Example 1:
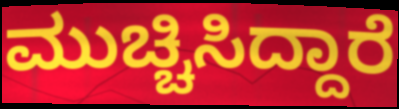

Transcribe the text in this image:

ಮುಚ್ಚಿಸಿದ್ದಾರೆ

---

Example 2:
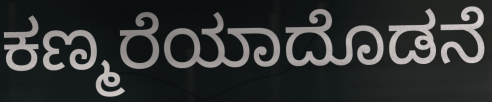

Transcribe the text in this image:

ಕಣ್ಮರೆಯಾದೊಡನೆ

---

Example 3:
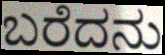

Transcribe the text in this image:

ಬರೆದನು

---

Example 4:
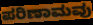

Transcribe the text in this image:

ಪರಿಣಾಮವು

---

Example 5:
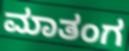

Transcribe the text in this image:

ಮಾತಂಗ